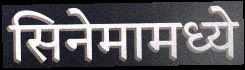
सिनेमामध्ये